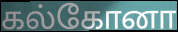
கல்கோனா